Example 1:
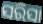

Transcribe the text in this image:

ସରିସା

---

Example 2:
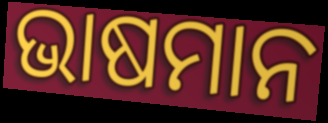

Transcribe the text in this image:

ଭାଷମାନ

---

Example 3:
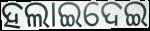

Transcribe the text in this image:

ହଲାଇଦେଇ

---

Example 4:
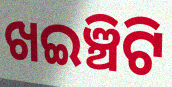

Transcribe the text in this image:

ଖଇଞ୍ଚିଟି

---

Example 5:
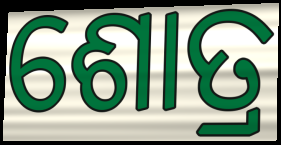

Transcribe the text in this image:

ଶୋତ୍ର